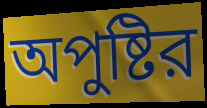
অপুষ্টির